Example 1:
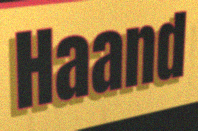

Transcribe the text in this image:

Haand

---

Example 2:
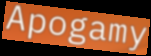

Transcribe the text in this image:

Apogamy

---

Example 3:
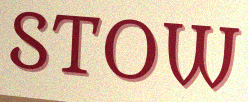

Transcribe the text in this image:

STOW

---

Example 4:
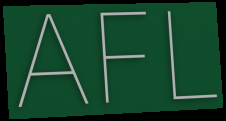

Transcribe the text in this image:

AFL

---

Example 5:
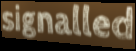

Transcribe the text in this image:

signalled